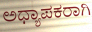
ಅಧ್ಯಾಪಕರಾಗಿ